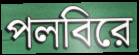
পলবিরে